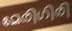
മേരിഗിരി